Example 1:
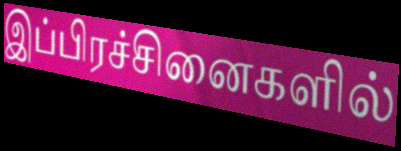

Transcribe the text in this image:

இப்பிரச்சினைகளில்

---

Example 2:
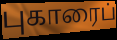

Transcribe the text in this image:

புகாரைப்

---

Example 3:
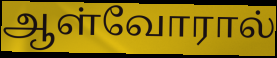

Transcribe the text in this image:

ஆள்வோரால்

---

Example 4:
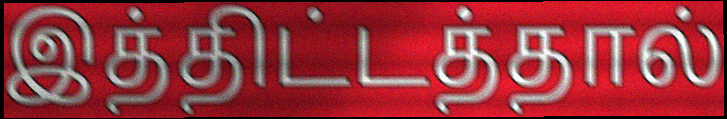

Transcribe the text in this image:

இத்திட்டத்தால்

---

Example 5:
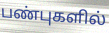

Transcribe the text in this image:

பண்புகளில்